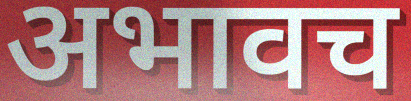
अभावच